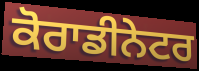
ਕੋਰਾਡੀਨੇਟਰ